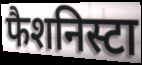
फैशनिस्टा